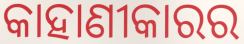
କାହାଣୀକାରର